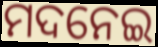
ମଦନେଇ